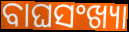
ବାଘସଂଖ୍ୟା